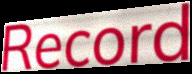
Record